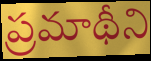
ప్రమాథీని